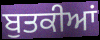
ਬੁਤਕੀਆਂ